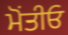
ਮੋਂਤੀਓ